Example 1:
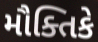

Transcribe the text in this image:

મૌક્તિકે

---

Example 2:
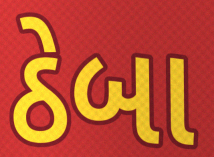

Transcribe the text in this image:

ઠેબા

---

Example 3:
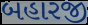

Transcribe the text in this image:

બહારજી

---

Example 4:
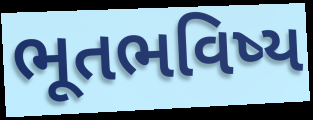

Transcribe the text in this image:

ભૂતભવિષ્ય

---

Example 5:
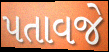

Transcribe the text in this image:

પતાવજે